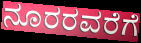
ನೂರರವರೆಗೆ